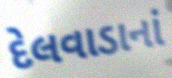
દેલવાડાનાં